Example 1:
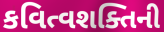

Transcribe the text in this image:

કવિત્વશક્તિની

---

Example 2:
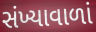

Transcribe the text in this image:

સંખ્યાવાળાં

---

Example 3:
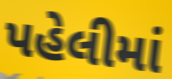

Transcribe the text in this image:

પહેલીમાં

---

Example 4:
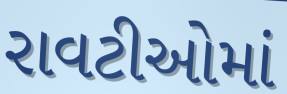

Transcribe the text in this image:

રાવટીઓમાં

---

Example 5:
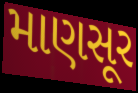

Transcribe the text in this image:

માણસૂર